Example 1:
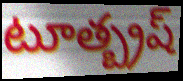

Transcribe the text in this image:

టూత్బ్రష్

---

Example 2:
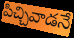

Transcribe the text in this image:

పిచ్చివాడనే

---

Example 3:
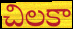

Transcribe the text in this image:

చిలకా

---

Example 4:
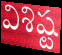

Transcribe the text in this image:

విశిష్ట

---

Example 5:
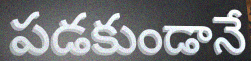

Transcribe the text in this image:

పడకుండానే